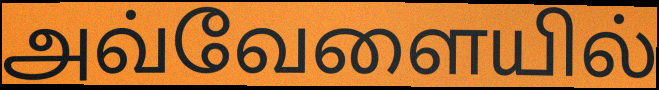
அவ்வேளையில்